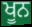
ਖੂਨ